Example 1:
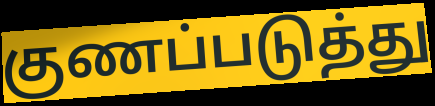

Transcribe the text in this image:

குணப்படுத்து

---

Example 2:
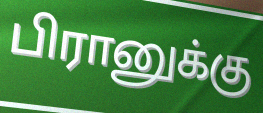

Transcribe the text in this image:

பிரானுக்கு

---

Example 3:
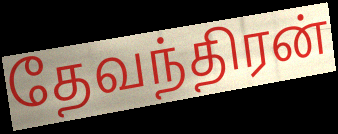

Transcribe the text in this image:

தேவந்திரன்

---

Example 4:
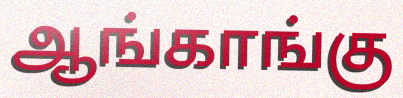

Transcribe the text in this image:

ஆங்காங்கு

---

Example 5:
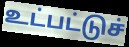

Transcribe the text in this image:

உட்பட்டுச்